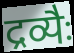
द्रव्यैः